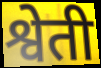
श्वेती